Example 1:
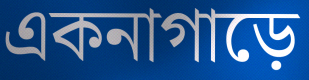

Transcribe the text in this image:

একনাগাড়ে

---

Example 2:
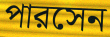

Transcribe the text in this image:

পারসেন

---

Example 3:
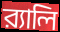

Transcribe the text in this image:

র‍্যালি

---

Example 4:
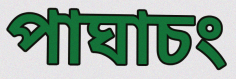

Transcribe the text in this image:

পাঘাচং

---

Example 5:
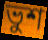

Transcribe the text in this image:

ভুশ